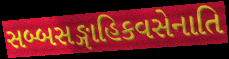
સબ્બસઙ્ગાહિકવસેનાતિ